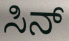
ಸಿನ್